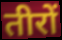
तीरों